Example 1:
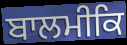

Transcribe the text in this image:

ਬਾਲਮੀਕਿ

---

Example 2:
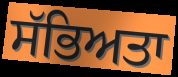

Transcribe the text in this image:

ਸੱਭਿਅਤਾ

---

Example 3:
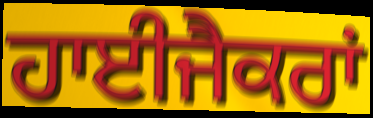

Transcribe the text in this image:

ਹਾਈਜੈਕਰਾਂ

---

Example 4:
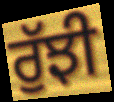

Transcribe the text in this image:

ਰੁੱਝੀ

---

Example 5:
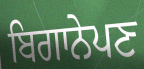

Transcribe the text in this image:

ਬਿਗਾਨੇਪਣ